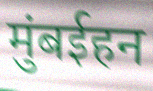
मुंबईहन